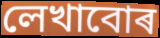
লেখাবোৰ